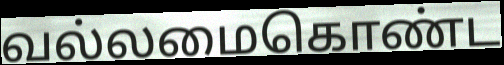
வல்லமைகொண்ட